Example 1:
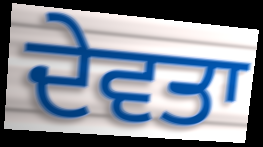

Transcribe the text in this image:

ਦੇਵਤਾ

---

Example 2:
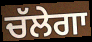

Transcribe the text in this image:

ਚੱਲੇਗਾ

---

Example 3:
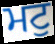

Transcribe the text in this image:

ਮਟੁ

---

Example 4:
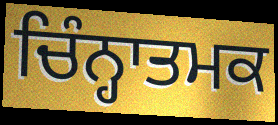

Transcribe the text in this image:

ਚਿੰਨ੍ਹਾਤਮਕ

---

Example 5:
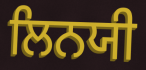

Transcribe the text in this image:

ਲਿਨਯੀ